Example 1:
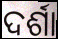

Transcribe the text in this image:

ଦର୍ଶା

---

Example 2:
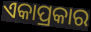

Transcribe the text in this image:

ଏକାପ୍ରକାର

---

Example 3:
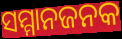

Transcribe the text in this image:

ସମ୍ମାନଜନକ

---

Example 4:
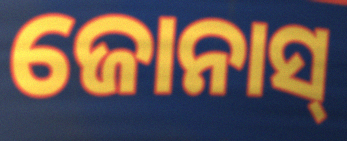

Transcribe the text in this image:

ଜୋନାସ୍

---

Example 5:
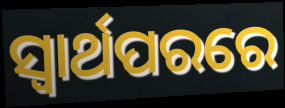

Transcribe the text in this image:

ସ୍ୱାର୍ଥପରରେ